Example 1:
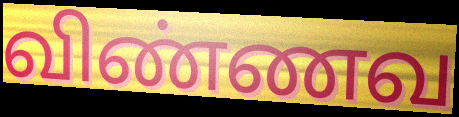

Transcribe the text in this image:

விண்ணவ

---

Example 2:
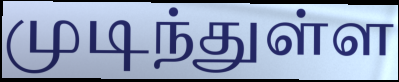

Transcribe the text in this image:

முடிந்துள்ள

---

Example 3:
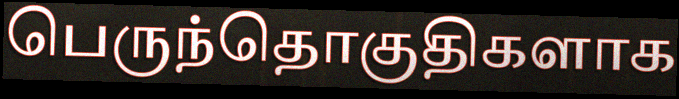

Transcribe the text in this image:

பெருந்தொகுதிகளாக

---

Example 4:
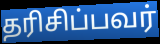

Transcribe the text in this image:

தரிசிப்பவர்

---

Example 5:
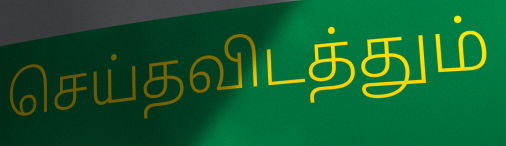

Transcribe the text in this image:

செய்தவிடத்தும்